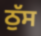
ਠੁੱਸ